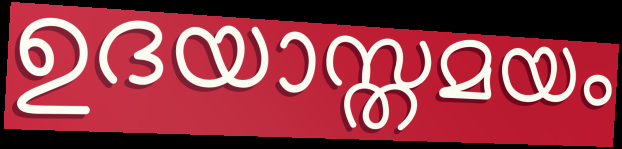
ഉദയാസ്തമയം